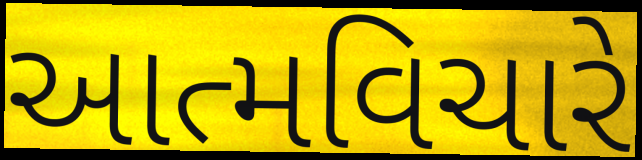
આત્મવિચારે